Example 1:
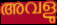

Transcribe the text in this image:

അവളു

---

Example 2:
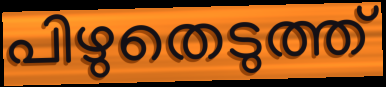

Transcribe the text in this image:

പിഴുതെടുത്ത്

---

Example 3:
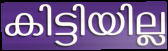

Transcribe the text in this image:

കിട്ടിയില്ല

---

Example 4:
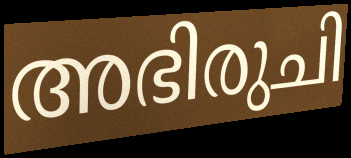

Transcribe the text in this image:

അഭിരുചി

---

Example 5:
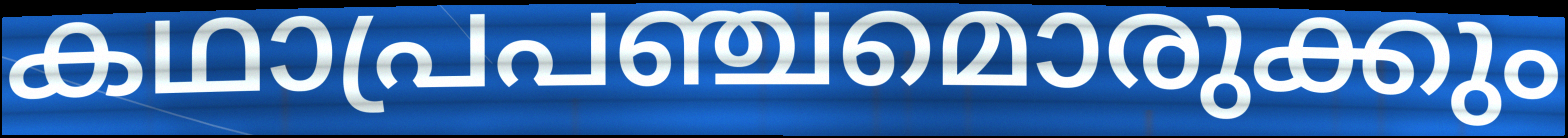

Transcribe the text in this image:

കഥാപ്രപഞ്ചമൊരുക്കും